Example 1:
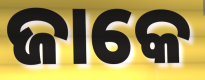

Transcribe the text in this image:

ଜାକେ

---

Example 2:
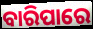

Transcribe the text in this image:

ବାରିପାରେ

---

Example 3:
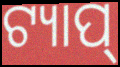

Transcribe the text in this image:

ଟ୍ୟାପ୍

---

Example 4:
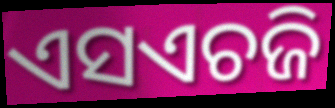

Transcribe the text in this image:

ଏସଏଚଜି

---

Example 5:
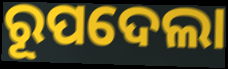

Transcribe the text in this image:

ରୂପଦେଲା